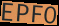
EPFO